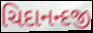
ચિદાનન્દજી